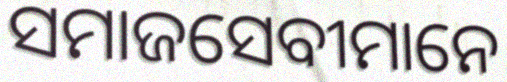
ସମାଜସେବୀମାନେ